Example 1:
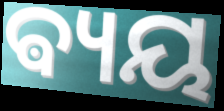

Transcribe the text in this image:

ଵ୍ୟୟ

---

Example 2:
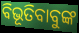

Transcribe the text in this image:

ବିଭୂତିବାବୁଙ୍କ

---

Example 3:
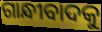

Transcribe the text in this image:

ଗାନ୍ଧୀବାଦକୁ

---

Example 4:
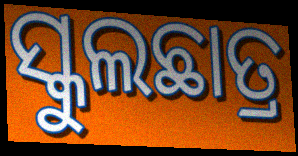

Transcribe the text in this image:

ସ୍କୁଲଛାତ୍ର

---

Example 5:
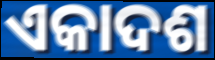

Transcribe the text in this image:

ଏକାଦଶ